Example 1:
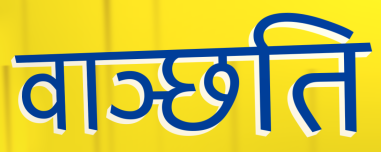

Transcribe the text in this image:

वाञ्छति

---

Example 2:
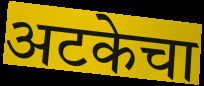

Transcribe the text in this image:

अटकेचा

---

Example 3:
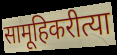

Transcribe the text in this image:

सामूहिकरीत्या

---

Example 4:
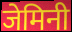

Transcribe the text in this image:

जेमिनी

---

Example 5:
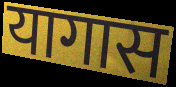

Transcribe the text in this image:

यागास